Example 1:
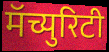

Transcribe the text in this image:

मॅच्युरिटी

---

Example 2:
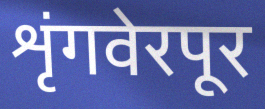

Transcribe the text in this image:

शृंगवेरपूर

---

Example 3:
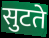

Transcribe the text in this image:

सुटते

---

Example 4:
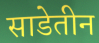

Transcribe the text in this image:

साडेतीन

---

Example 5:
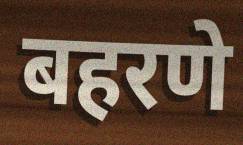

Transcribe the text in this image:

बहरणे